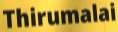
Thirumalai